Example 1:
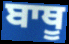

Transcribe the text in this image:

ਬਾਥੂ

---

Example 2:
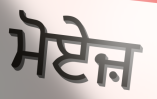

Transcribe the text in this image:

ਮੋਏਜ਼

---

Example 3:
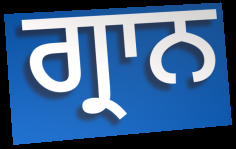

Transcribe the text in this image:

ਗ੍ਰਾਨ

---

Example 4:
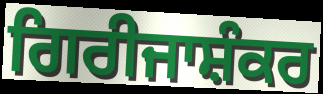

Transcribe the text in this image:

ਗਿਰੀਜਾਸ਼ੰਕਰ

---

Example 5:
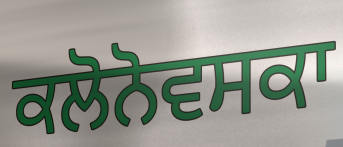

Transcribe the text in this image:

ਕਲੋਨੋਵਸਕਾ